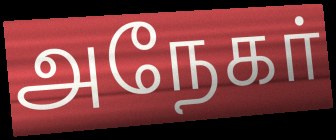
அநேகர்